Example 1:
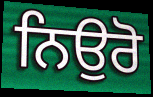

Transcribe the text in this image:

ਨਿਉਰੋ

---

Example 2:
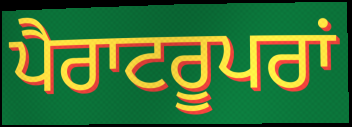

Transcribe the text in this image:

ਪੈਰਾਟਰੂਪਰਾਂ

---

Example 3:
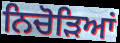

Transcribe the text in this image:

ਨਿਚੋੜਿਆਂ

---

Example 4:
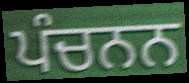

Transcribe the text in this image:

ਪੰਚਨਨ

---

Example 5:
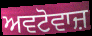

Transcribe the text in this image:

ਅਵਟੋਵਾਜ਼